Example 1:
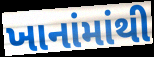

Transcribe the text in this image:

ખાનાંમાંથી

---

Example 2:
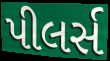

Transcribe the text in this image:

પીલર્સ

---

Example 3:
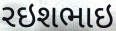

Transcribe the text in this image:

રઇશભાઇ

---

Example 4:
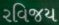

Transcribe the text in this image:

રવિજય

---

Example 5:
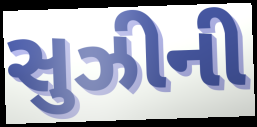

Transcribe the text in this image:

સુઝીની